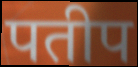
पतीप